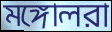
মঙ্গোলরা